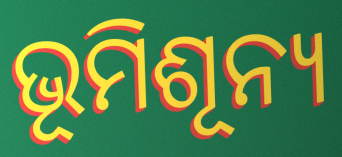
ଭୂମିଶୂନ୍ୟ